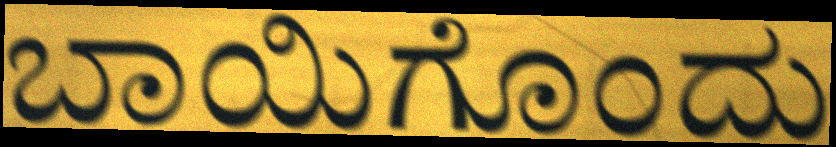
ಬಾಯಿಗೊಂದು